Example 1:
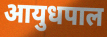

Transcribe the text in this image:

आयुधपाल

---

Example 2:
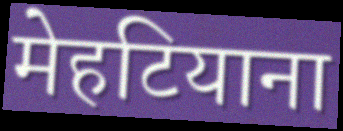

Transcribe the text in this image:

मेहटियाना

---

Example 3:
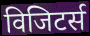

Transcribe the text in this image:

विजिटर्स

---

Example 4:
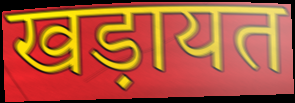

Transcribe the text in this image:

खड़ायत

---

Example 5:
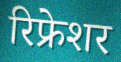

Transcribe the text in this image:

रिफ्रेशर